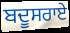
ਬਦੂਸਰਾਏ